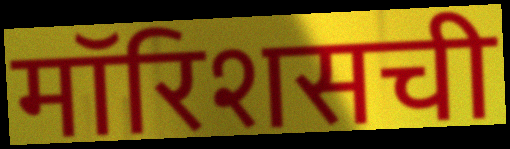
मॉरिशसची